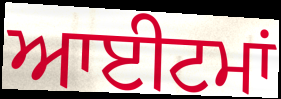
ਆਈਟਮਾਂ